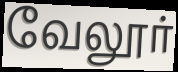
வேலூர்